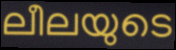
ലീലയുടെ